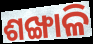
ଶଙ୍ଖାଳି